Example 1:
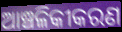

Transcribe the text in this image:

ଆଞ୍ଚଳିକୀକରଣ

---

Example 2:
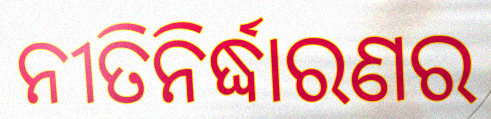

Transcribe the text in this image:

ନୀତିନିର୍ଦ୍ଧାରଣର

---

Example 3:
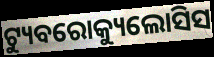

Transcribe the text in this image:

ଟ୍ୟୁବରୋକ୍ୟୁଲୋସିସ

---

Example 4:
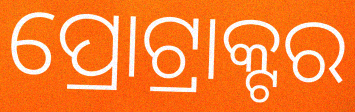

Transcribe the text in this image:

ପ୍ରୋଟ୍ରାକ୍ଟର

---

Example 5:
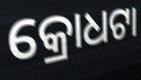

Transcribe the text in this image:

କ୍ରୋଧଟା